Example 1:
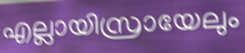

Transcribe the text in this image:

എല്ലായിസ്രായേലും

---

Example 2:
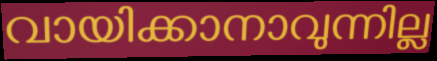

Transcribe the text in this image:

വായിക്കാനാവുന്നില്ല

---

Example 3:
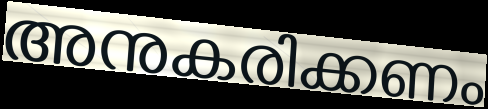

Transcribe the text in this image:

അനുകരിക്കണം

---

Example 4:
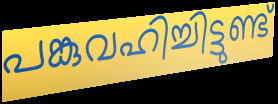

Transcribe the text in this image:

പങ്കുവഹിച്ചിട്ടുണ്ട്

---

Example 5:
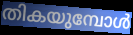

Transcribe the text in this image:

തികയുമ്പോൾ